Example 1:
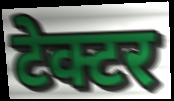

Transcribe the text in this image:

टेक्टर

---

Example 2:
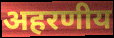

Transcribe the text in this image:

अहरणीय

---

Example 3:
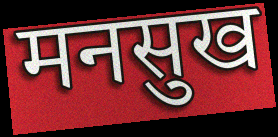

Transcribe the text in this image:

मनसुख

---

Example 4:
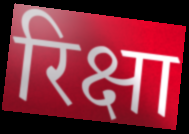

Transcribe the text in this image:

रिक्षा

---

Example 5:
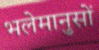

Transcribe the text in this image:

भलेमानुसों